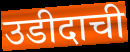
उडीदाची